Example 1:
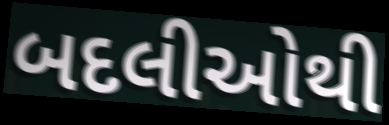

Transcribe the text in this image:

બદલીઓથી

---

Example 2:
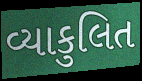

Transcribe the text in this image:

વ્યાકુલિત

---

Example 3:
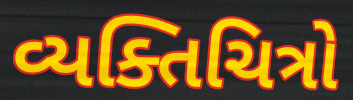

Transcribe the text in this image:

વ્યક્તિચિત્રો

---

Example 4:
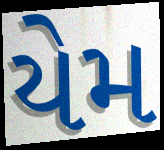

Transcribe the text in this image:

યેમ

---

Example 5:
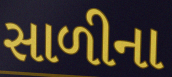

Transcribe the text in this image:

સાળીના